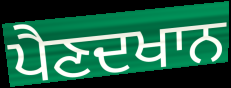
ਪੈਣਦਖਾਨ